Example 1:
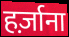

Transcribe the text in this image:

हर्ज़ाना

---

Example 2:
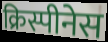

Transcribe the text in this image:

क्रिस्पीनेस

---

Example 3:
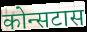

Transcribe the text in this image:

कोन्सटास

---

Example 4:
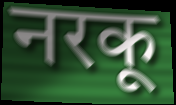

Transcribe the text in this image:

नरकू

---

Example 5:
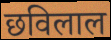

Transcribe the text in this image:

छविलाल